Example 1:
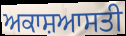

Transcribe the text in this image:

ਅਕਾਸ਼ਆਸਤੀ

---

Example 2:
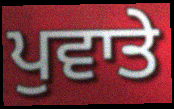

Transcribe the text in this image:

ਪੁਵਾਤੇ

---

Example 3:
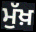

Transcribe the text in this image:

ਮੁੱਖ਼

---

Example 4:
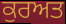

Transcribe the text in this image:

ਕੁਰਅਤ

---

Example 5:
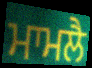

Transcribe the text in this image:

ਮਾਮਲੈ